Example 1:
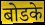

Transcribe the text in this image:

बोडके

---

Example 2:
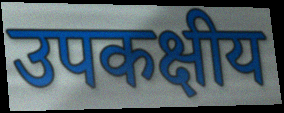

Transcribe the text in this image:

उपकक्षीय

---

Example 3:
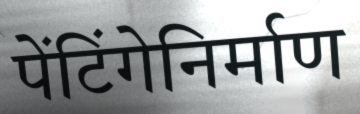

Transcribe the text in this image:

पेंटिंगेनिर्माण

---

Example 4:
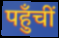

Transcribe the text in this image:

पहुँचीं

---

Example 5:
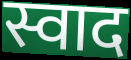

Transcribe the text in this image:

स्‍वाद